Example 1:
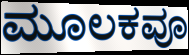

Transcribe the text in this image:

ಮೂಲಕವೂ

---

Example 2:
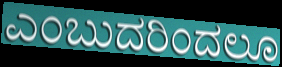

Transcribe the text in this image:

ಎಂಬುದರಿಂದಲೂ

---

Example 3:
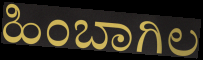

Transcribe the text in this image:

ಹಿಂಬಾಗಿಲ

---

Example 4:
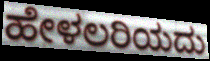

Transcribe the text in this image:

ಹೇಳಲರಿಯದು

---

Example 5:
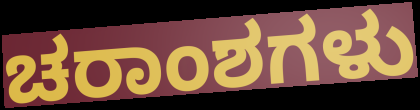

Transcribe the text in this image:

ಚರಾಂಶಗಳು